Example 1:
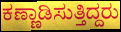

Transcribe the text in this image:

ಕಣ್ಣಾಡಿಸುತ್ತಿದ್ದರು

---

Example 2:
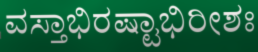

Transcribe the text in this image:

ವಸ್ತಾಭಿರಷ್ಟಾಭಿರೀಶಃ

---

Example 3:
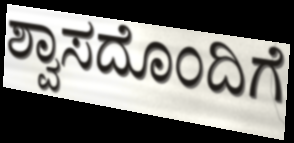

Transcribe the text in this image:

ಶ್ವಾಸದೊಂದಿಗೆ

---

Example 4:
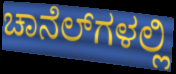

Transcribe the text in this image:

ಚಾನೆಲ್‍ಗಳಲ್ಲಿ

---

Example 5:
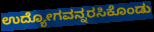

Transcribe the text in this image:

ಉದ್ಯೋಗವನ್ನರಸಿಕೊಂಡು